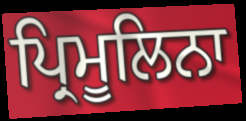
ਪ੍ਰਿਮੂਲਿਨਾ